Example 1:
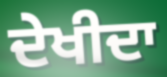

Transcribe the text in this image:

ਦੇਖੀਦਾ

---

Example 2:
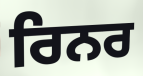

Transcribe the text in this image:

ਰਿਨਰ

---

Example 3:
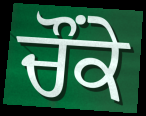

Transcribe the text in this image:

ਚੌਂਕੇ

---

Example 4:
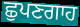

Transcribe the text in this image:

ਛੁਪਣਗਾਹ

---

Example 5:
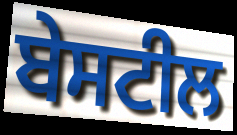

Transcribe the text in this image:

ਬੇਸਟੀਲ